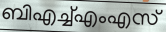
ബിഎച്ച്എംഎസ്